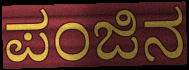
ಪಂಜಿನ